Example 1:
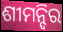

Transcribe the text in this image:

ଶୀମନ୍ଦିର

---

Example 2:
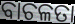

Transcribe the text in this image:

ବାଚଳତା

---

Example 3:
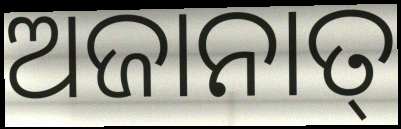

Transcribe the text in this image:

ଅଜାନାତ୍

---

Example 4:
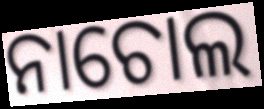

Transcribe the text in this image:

ନାଚୋଲ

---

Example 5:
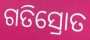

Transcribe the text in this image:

ଗତିସ୍ରୋତ